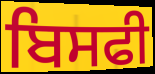
ਬਿਸਫੀ